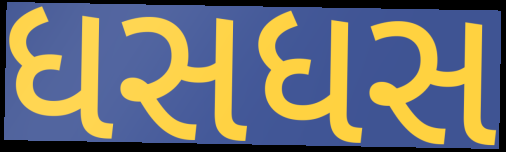
ધસધસ